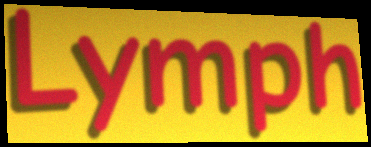
Lymph